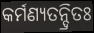
କର୍ମଣ୍ୟତନ୍ଦ୍ରିତଃ